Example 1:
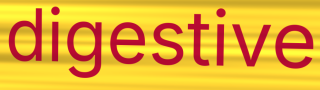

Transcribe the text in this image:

digestive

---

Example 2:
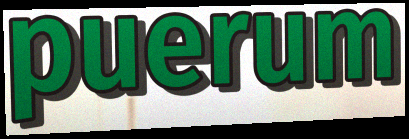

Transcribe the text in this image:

puerum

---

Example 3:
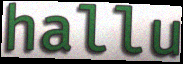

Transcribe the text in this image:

hallu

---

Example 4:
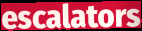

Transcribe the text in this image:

escalators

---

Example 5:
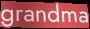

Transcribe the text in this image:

grandma